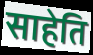
साहेति